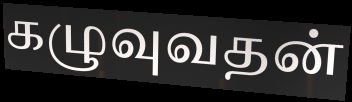
கழுவுவதன்